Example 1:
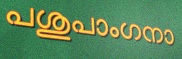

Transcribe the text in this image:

പശുപാംഗനാ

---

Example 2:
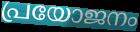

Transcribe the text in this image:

പ്രയോജനം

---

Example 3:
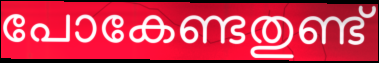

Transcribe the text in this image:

പോകേണ്ടതുണ്ട്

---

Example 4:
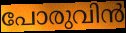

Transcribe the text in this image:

പോരുവിൻ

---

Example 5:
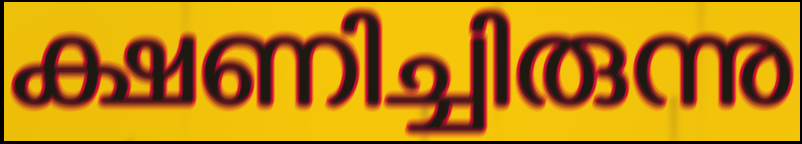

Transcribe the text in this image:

ക്ഷണിച്ചിരുന്നു